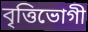
বৃত্তিভোগী